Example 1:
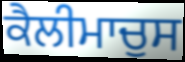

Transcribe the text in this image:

ਕੈਲੀਮਾਚੁਸ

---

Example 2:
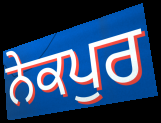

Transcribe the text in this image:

ਨੇਕਪੁਰ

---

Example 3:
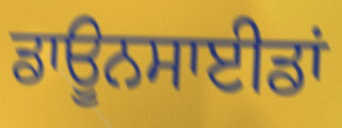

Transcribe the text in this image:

ਡਾਊਨਸਾਈਡਾਂ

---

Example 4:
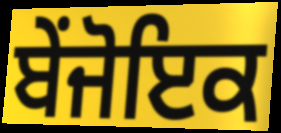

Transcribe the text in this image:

ਬੇਂਜੋਇਕ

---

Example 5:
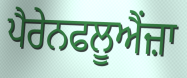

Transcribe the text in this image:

ਪੈਰੇਨਫਲੂਐਂਜ਼ਾ